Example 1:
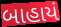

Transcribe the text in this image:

બાહાયં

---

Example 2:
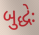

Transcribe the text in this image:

બુદ્ધેઃ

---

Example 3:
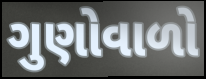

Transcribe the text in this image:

ગુણોવાળો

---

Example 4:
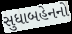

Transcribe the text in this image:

સુધાબહેનનો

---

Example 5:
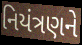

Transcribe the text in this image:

નિયંત્રણને